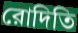
রোদিতি